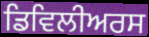
ਡਿਵਿਲੀਅਰਸ